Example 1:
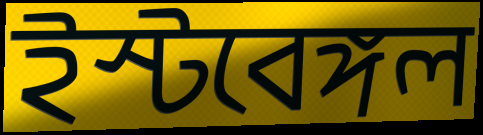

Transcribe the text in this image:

ইস্টবেঙ্গল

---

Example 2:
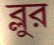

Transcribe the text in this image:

ব্লুর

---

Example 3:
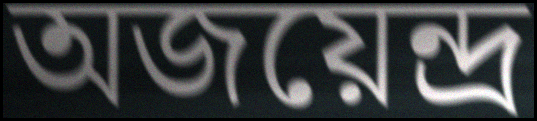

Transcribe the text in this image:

অজয়েন্দ্র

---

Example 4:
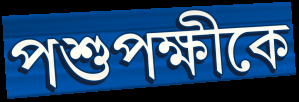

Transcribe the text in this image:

পশুপক্ষীকে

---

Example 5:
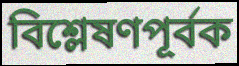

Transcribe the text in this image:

বিশ্লেষণপূর্বক